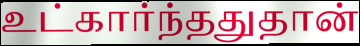
உட்கார்ந்ததுதான்